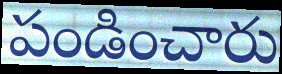
పండించారు